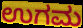
ಉಗಮ